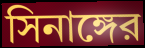
সিনাঙ্গের